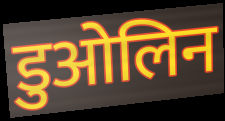
डुओलिन